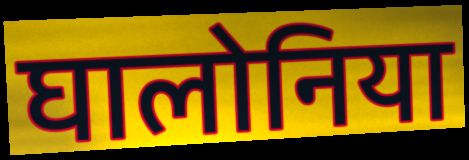
घालोनिया